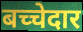
बच्चेदार